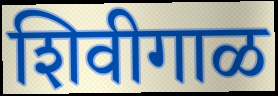
शिवीगाळ